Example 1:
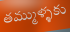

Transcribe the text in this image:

తమ్ముళ్ళకు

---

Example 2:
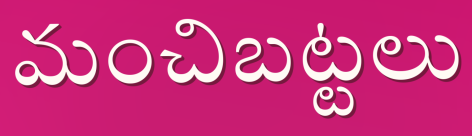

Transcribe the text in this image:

మంచిబట్టలు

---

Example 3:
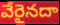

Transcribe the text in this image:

వేరైనదా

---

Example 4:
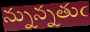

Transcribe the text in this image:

న్నున్నతుఁ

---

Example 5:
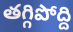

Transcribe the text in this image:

తగ్గిపోద్ది